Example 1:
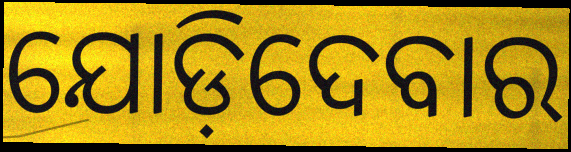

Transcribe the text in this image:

ଯୋଡ଼ିଦେବାର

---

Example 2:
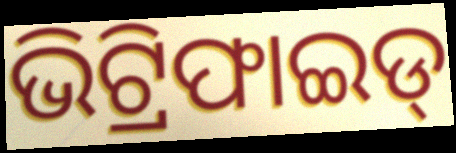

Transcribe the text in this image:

ଭିଟ୍ରିଫାଇଡ୍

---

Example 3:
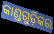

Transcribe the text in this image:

କାଣ୍ଡଗୁଡ଼ିକର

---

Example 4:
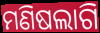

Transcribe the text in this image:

ମଣିଷଲାଗି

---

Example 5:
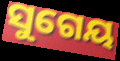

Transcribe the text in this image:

ସୁଗେୟ